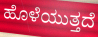
ಹೊಳೆಯುತ್ತದೆ